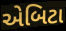
એબિટા